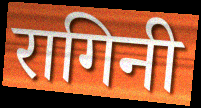
रागिनी